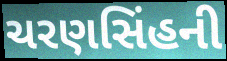
ચરણસિંહની